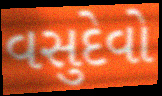
વસુદેવો